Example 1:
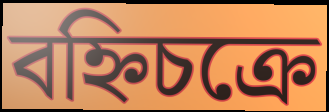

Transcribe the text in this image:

বহ্নিচক্রে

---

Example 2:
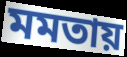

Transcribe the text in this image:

মমতায়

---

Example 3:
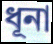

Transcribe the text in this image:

ধূনা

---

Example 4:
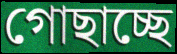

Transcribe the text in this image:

গোছাচ্ছে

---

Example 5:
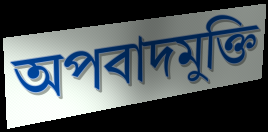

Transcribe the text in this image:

অপবাদমুক্তি